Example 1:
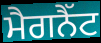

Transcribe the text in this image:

ਮੈਗਨੈੱਟ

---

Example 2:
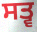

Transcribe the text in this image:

ਸਤ੍ਵ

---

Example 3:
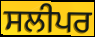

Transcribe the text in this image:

ਸਲੀਪਰ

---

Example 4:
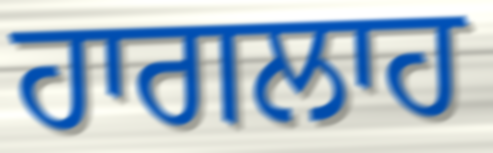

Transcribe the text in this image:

ਹਾਗਲਾਹ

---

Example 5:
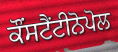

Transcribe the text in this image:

ਕੌਂਸਟੈਂਟੀਨੋਪੋਲ